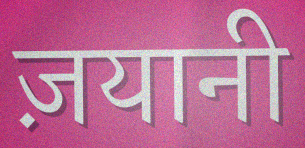
ज़यानी